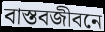
বাস্তবজীবনে